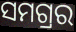
ସମଗ୍ରର